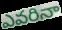
ఎవరినా